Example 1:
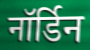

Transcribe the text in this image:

नॉर्डिन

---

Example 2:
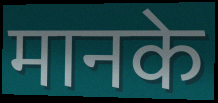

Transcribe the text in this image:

मानके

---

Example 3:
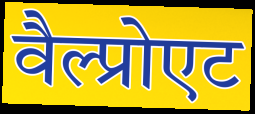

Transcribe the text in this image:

वैल्प्रोएट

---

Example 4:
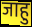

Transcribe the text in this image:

जाहु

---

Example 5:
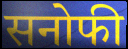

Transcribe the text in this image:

सनोफी